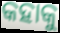
କହାକୁ